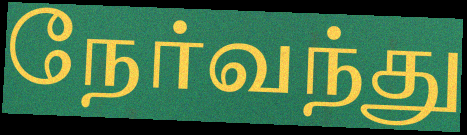
நேர்வந்து